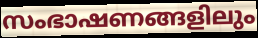
സംഭാഷണങ്ങളിലും